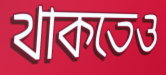
থাকতেও